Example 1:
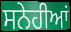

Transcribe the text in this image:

ਸਨੇਹੀਆਂ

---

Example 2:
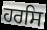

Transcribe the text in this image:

ਹਰਸਿ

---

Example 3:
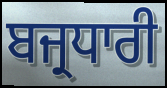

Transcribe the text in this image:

ਬਜ੍ਰਧਾਰੀ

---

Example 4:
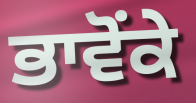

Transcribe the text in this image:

ਭਾਵੋਂਕੇ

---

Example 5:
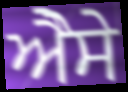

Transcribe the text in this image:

ਐੇਸੇ